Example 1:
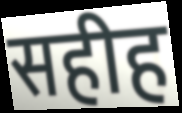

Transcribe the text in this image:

सहीह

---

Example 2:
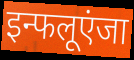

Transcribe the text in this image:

इन्फलूएंजा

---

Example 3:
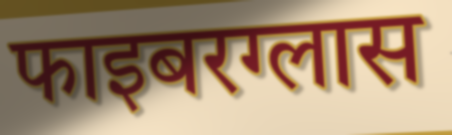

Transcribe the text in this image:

फाइबरग्लास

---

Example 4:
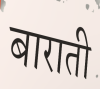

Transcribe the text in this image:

बाराती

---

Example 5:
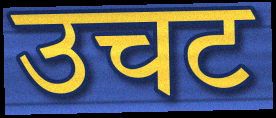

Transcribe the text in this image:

उचट